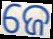
ଜେ